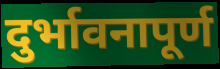
दुर्भावनापूर्ण